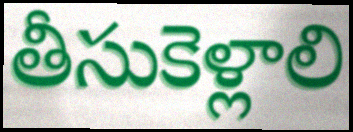
తీసుకెళ్లాలి